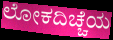
ಲೋಕದಿಚ್ಚೆಯ